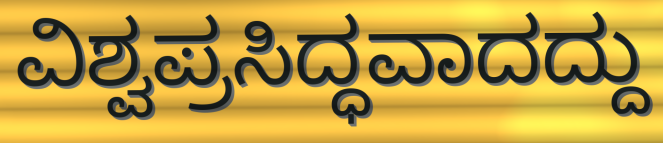
ವಿಶ್ವಪ್ರಸಿದ್ಧವಾದದ್ದು